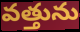
వత్తును